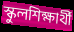
স্কুলশিক্ষার্থী